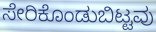
ಸೇರಿಕೊಂಡುಬಿಟ್ಟವು